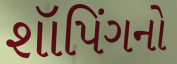
શૉપિંગનો